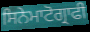
ਸਿਨੇਮਾਟੋਗ੍ਰਾਫੀ